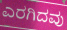
ಎರಗಿದವು